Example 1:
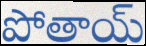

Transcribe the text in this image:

పోతాయ్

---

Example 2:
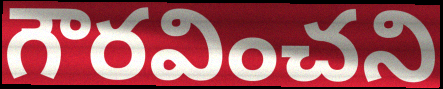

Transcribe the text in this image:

గౌరవించని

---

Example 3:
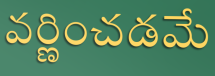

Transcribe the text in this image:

వర్ణించడమే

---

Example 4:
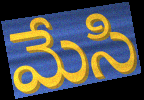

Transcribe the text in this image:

మేసి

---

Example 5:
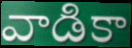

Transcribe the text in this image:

వాడికా